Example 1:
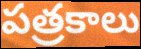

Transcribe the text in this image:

పత్రకాలు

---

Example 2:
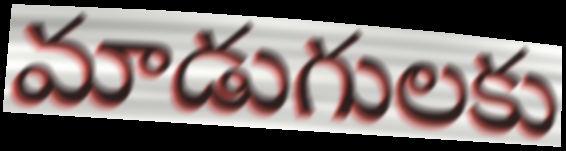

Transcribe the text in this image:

మాడుగులకు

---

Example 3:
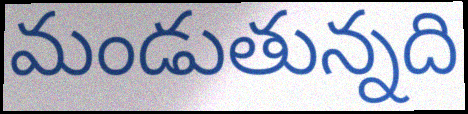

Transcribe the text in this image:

మండుతున్నది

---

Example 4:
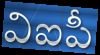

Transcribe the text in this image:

విఐపీ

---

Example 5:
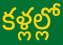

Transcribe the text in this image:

కళ్లల్లో